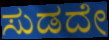
ಸುಡದೇ